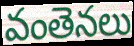
వంతెనలు